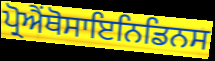
ਪ੍ਰੋਐਂਥੋਸਾਇਨਿਡਿਨਸ